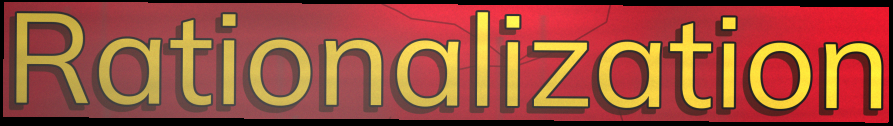
Rationalization